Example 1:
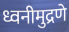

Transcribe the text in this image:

ध्वनीमुद्रणे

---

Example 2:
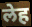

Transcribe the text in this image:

लेह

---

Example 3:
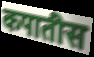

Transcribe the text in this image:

कपातीस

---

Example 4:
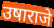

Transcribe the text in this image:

उषाराजे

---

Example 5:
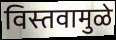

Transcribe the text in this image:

विस्तवामुळे